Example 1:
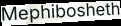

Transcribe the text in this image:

Mephibosheth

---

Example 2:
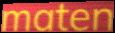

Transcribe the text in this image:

maten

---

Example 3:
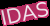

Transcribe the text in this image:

IDAS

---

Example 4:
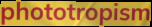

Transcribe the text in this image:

phototropism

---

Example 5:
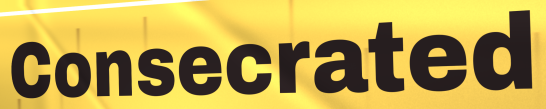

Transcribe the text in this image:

Consecrated